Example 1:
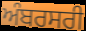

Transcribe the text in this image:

ਅੰਬਰਸਰੀ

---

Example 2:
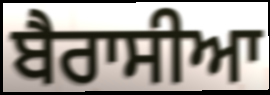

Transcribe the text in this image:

ਬੈਰਾਸੀਆ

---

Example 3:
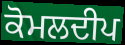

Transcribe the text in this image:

ਕੋਮਲਦੀਪ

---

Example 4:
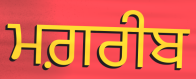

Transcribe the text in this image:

ਮਗ਼ਰੀਬ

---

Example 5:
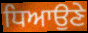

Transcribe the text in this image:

ਧਿਆਉਣੇ